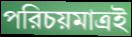
পরিচয়মাত্রই